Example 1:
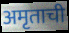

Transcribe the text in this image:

अमृताची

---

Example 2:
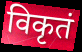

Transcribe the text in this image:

विकृतं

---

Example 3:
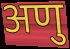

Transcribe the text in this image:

अणु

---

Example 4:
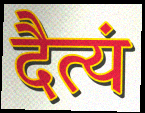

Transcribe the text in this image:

दैत्यं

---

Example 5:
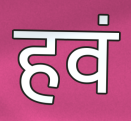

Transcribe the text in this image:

हवं